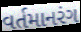
વર્તમાનરંગ